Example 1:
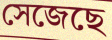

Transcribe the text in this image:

সেজেছে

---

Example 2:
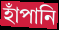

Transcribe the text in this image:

হাঁপানি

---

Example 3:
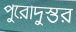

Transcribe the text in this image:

পুরোদুস্তর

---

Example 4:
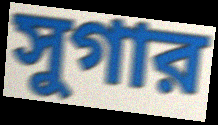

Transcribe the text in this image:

সুগার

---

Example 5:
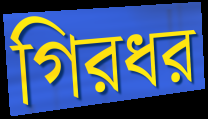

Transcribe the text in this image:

গিরধর